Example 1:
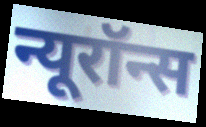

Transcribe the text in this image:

न्यूरॉन्स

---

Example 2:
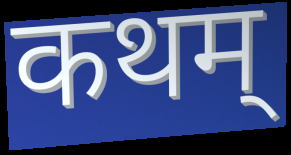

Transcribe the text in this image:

कथम्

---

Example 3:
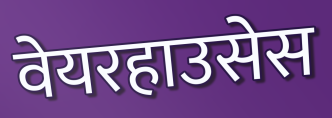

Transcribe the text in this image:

वेयरहाउसेस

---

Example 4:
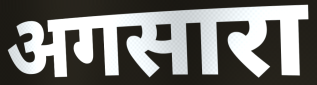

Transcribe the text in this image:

अगसारा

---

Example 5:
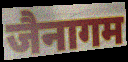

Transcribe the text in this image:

जैनागम